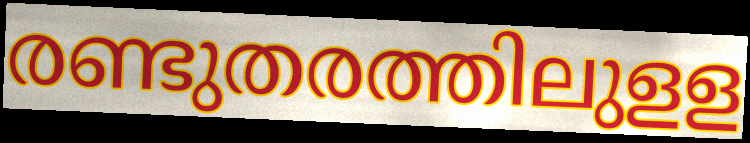
രണ്ടുതരത്തിലുളള